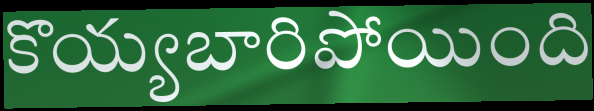
కొయ్యబారిపోయింది